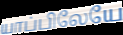
யாப்பிலேயே